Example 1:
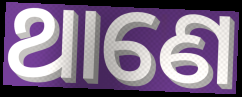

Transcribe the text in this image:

ଥାଣେ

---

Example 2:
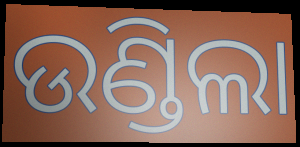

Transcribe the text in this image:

ଉଣ୍ଡିଲା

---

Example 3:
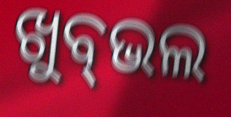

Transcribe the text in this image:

ଖୁବ୍‌ଭଲ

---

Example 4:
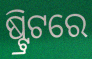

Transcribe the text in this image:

ଷ୍ଟ୍ରିଟରେ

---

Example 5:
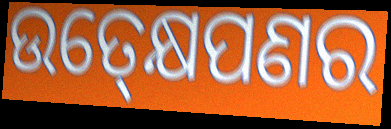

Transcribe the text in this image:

ଉତ୍କ୍ଷେପଣର